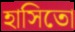
হাসিতো